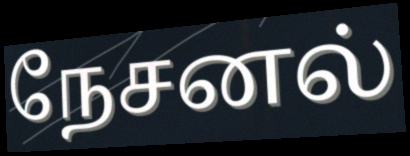
நேசனல்